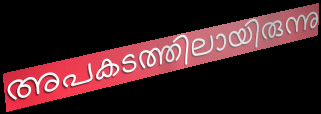
അപകടത്തിലായിരുന്നു